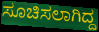
ಸೂಚಿಸಲಾಗಿದ್ದ